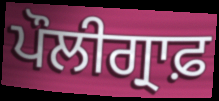
ਪੌਲੀਗ੍ਰਾਫ਼